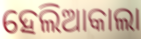
ହେଲିଆକାଲା